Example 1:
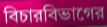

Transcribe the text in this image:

বিচারবিভাগের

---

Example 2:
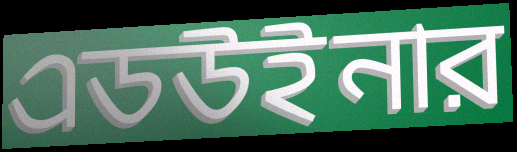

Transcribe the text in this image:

এডউইনার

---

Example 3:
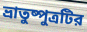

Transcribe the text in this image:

ভ্রাতুষ্পুত্রটির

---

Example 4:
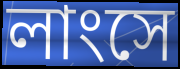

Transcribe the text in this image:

লাংসে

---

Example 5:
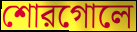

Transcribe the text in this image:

শোরগোলে